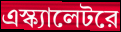
এস্ক্যালেটরে